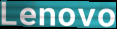
Lenovo